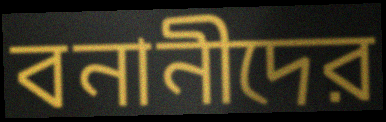
বনানীদের